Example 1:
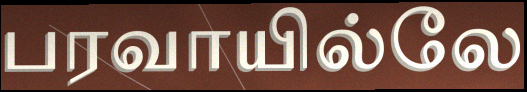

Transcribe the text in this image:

பரவாயில்லே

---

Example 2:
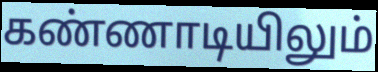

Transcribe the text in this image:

கண்ணாடியிலும்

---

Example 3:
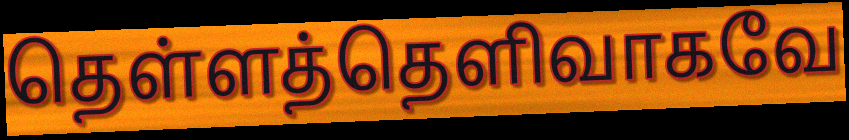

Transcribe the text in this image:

தெள்ளத்தெளிவாகவே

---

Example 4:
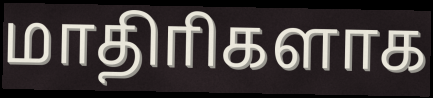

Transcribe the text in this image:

மாதிரிகளாக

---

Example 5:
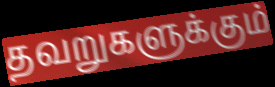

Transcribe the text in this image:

தவறுகளுக்கும்